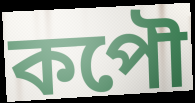
কপৌ